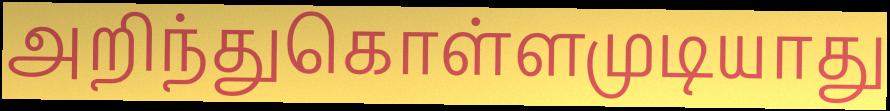
அறிந்துகொள்ளமுடியாது